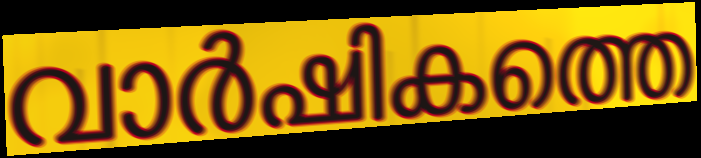
വാർഷികത്തെ